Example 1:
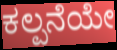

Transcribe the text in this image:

ಕಲ್ಪನೆಯೇ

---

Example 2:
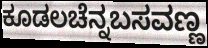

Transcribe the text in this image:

ಕೂಡಲಚೆನ್ನಬಸವಣ್ಣ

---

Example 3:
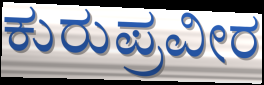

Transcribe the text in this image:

ಕುರುಪ್ರವೀರ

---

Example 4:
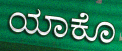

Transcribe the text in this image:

ಯಾಕೊ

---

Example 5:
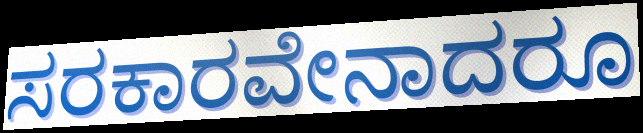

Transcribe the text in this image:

ಸರಕಾರವೇನಾದರೂ